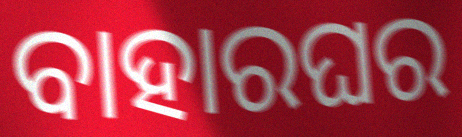
ବାହାରଘର